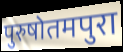
पुरुषोतमपुरा